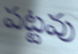
పట్టవు